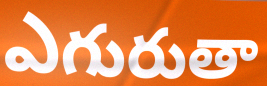
ఎగురుతా